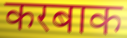
करबाक